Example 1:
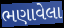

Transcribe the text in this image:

ભણાવેલા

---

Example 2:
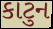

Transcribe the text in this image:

કાટુન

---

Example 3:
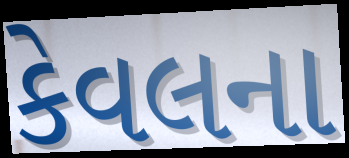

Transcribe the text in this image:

કેવલના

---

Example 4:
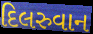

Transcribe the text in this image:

દિલરુવાન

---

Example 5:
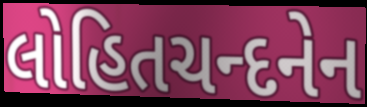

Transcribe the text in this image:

લોહિતચન્દનેન